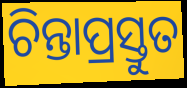
ଚିନ୍ତାପ୍ରସ୍ତୁତ